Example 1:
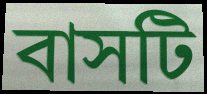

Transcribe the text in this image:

বাসটি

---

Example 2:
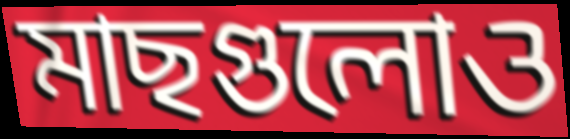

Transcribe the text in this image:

মাছগুলোও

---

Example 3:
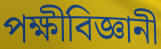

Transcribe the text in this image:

পক্ষীবিজ্ঞানী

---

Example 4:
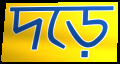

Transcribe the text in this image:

দড়ে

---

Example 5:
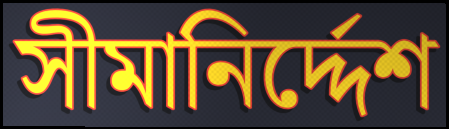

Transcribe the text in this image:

সীমানির্দ্দেশ